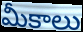
మీకాలు